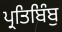
ਪ੍ਰਤਿਬਿੰਬੁ